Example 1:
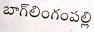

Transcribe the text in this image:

బాగ్‌లింగంపల్లి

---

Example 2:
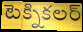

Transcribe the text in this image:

టెక్నికలర్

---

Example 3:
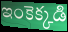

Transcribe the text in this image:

ఇంకెక్కడి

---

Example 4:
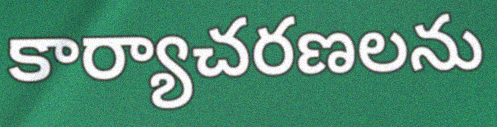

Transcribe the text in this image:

కార్యాచరణలను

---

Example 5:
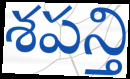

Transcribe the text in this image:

శపన్తి